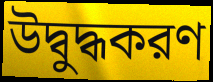
উদ্বুদ্ধকরণ